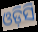
ଓଡ଼ିସି